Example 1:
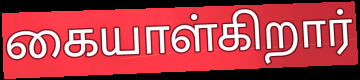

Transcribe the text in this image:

கையாள்கிறார்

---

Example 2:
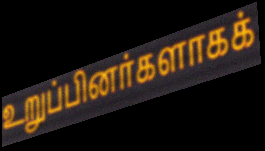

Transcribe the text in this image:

உறுப்பினர்களாகக்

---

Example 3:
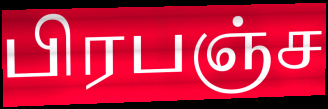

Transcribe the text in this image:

பிரபஞ்ச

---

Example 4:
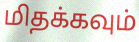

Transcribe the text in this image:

மிதக்கவும்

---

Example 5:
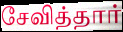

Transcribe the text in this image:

சேவித்தார்